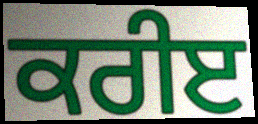
ਕਰੀੲ